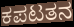
ಕಪಟತನ